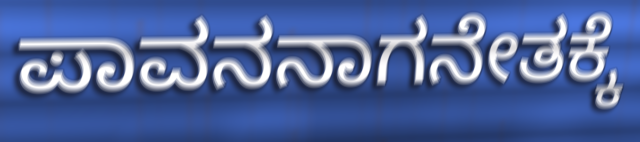
ಪಾವನನಾಗನೇತಕ್ಕೆ